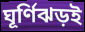
ঘূর্ণিঝড়ই